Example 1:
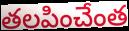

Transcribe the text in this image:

తలపించేంత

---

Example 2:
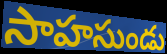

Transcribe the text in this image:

సాహసుండు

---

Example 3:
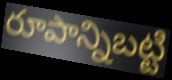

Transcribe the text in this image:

రూపాన్నిబట్టి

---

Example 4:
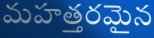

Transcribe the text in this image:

మహత్తరమైన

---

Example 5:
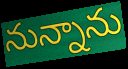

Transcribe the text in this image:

నున్నాను